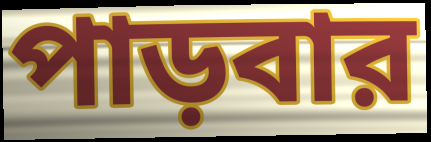
পাড়বার